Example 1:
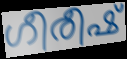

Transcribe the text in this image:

ഗീരീഷ്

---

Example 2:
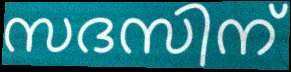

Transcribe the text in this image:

സദസിന്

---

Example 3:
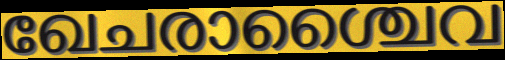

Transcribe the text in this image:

ഖേചരാശ്ചൈവ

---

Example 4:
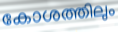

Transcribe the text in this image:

കോശത്തിലും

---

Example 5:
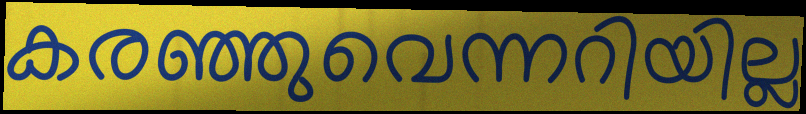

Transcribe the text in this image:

കരഞ്ഞുവെന്നറിയില്ല